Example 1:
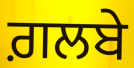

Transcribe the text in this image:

ਗ਼ਲਬੇ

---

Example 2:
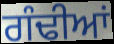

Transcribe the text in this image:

ਗੰਢੀਆਂ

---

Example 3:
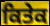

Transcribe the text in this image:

ਕਿਤੇਕ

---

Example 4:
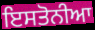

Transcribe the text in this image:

ਇਸਤੋਨੀਆ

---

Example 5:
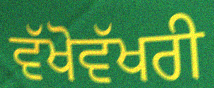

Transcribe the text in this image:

ਵੱਖੋਵੱਖਰੀ